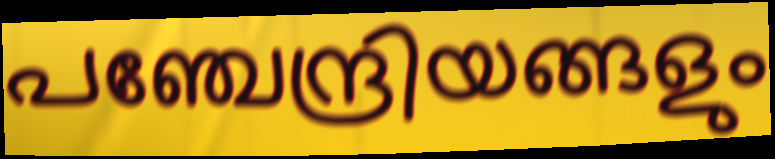
പഞ്ചേന്ദ്രിയങ്ങളും